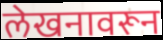
लेखनावरून